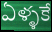
ఏళ్ళకే